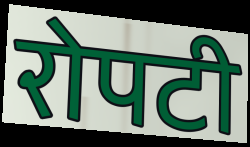
रोपटी